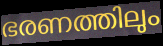
ഭരണത്തിലും